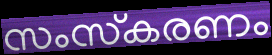
സംസ്‌കരണം